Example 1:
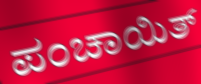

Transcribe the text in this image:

ಪಂಚಾಯಿತ್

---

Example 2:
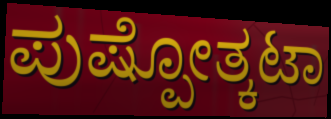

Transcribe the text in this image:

ಪುಷ್ಪೋತ್ಕಟಾ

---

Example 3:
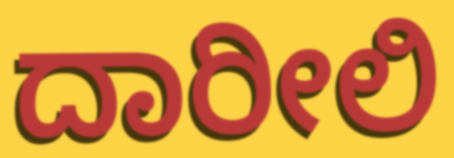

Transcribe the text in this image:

ದಾರೀಲಿ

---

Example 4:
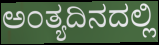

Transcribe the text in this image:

ಅಂತ್ಯದಿನದಲ್ಲಿ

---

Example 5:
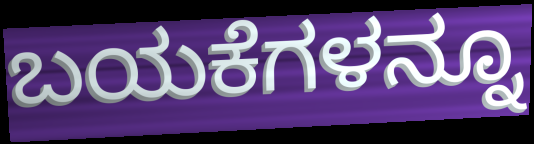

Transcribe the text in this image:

ಬಯಕೆಗಳನ್ನೂ